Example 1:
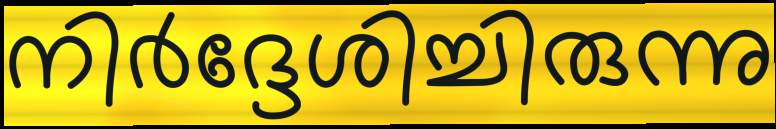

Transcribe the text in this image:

നിർദ്ദേശിച്ചിരുന്നു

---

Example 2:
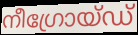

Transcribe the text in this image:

നീഗ്രോയ്ഡ്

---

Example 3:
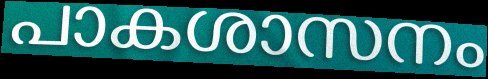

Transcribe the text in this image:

പാകശാസനം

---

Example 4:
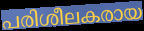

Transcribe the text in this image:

പരിശീലകരായ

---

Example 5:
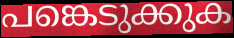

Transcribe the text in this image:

പങ്കെടുക്കുക